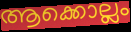
ആക്കൊല്ലം